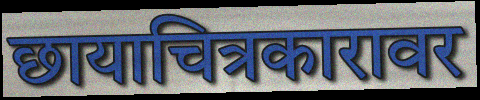
छायाचित्रकारावर